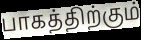
பாகத்திற்கும்